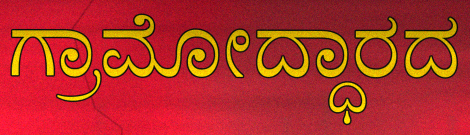
ಗ್ರಾಮೋದ್ಧಾರದ